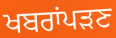
ਖਬਰਾਂਪੜਣ